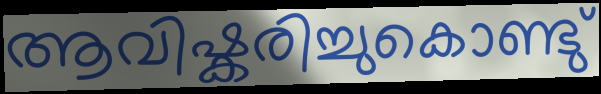
ആവിഷ്കരിച്ചുകൊണ്ടു്